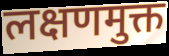
लक्षणमुक्त